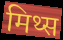
मिथ्स